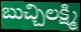
బుచ్చిలక్ష్మి